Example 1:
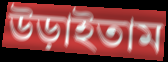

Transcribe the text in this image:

উড়াইতাম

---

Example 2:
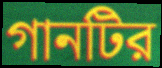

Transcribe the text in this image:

গানটির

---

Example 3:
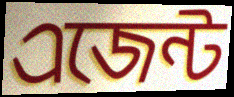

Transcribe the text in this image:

এজেন্ট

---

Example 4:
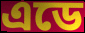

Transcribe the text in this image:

এডে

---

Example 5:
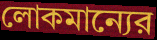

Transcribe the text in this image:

লোকমান্যের